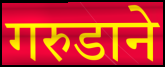
गरुडाने